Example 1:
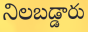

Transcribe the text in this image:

నిలబడ్డారు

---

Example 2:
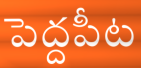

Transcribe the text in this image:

పెద్దపీట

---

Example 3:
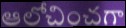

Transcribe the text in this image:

ఆలోచించగా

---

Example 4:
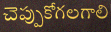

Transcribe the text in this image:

చెప్పుకోగలగాలి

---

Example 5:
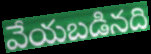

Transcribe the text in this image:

వేయబడినది